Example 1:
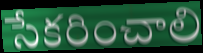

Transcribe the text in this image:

సేకరించాలి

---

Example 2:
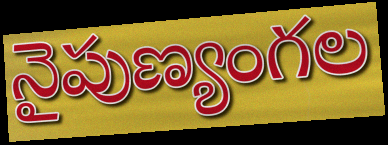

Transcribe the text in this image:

నైపుణ్యంగల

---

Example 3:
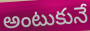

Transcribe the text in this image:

అంటుకునే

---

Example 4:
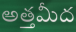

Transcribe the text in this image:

అత్తమీద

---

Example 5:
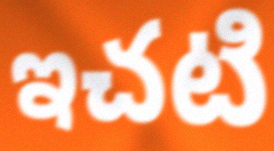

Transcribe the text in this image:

ఇచటి